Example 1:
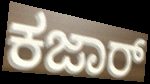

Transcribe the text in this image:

ಕಜಾರ್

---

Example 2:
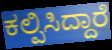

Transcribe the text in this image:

ಕಲ್ಪಿಸಿದ್ದಾರೆ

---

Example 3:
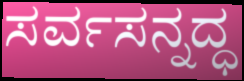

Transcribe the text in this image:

ಸರ್ವಸನ್ನದ್ಧ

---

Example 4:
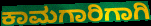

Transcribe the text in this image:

ಕಾಮಗಾರಿಗಾಗಿ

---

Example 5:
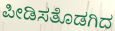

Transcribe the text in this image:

ಪೀಡಿಸತೊಡಗಿದ